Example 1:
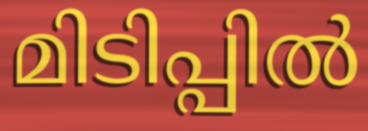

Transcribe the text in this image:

മിടിപ്പിൽ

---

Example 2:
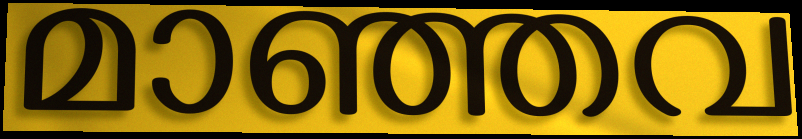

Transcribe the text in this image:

മാഞ്ഞവ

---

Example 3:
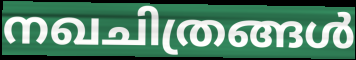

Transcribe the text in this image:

നഖചിത്രങ്ങൾ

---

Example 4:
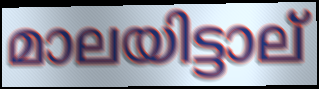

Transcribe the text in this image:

മാലയിട്ടാല്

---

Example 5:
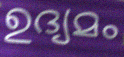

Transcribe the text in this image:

ഉദ്യമം